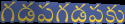
గడపగడపకు